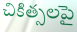
చికిత్సలపై